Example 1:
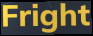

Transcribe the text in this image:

Fright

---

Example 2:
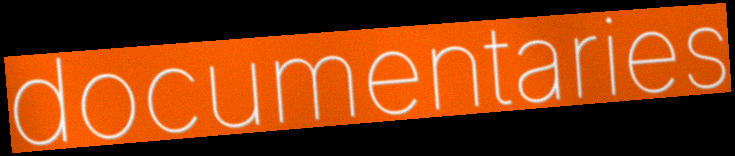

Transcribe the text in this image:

documentaries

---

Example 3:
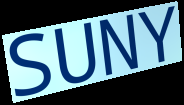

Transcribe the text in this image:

SUNY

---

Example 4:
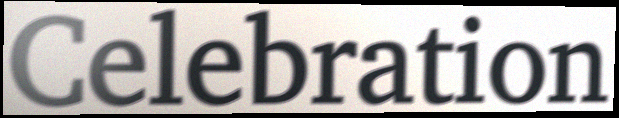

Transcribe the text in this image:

Celebration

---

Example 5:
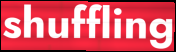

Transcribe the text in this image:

shuffling